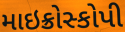
માઇક્રોસ્કોપી